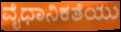
ವೈಧಾನಿಕತೆಯು